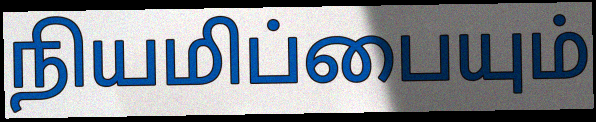
நியமிப்பையும்